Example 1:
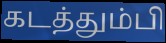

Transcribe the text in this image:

கடத்தும்பி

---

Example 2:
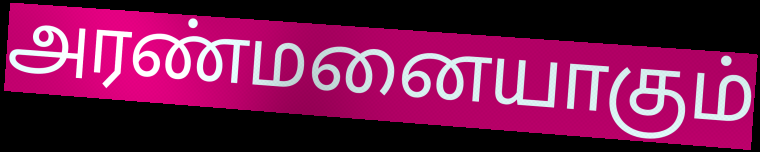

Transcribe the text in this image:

அரண்மனையாகும்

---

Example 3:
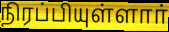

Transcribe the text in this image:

நிரப்பியுள்ளார்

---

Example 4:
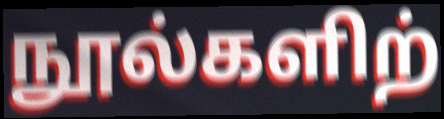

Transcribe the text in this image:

நூல்களிற்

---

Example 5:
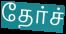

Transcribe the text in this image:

தேர்ச்